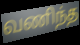
வணிந்த